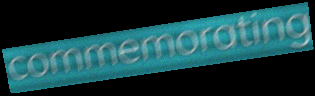
commemorating